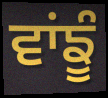
ਵਾਂਙੂੰ